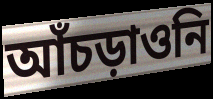
আঁচড়াওনি